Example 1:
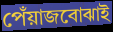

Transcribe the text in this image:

পেঁয়াজবোঝাই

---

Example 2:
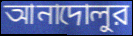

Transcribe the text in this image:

আনাদোলুর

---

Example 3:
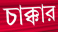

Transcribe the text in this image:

চাক্কার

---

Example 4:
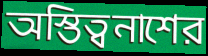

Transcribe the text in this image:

অস্তিত্বনাশের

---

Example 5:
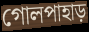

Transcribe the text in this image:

গোলপাহাড়